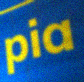
pia